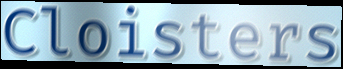
Cloisters